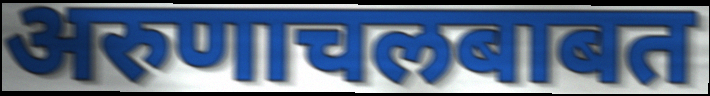
अरुणाचलबाबत